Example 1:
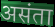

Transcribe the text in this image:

असंता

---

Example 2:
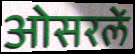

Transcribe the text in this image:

ओसरलें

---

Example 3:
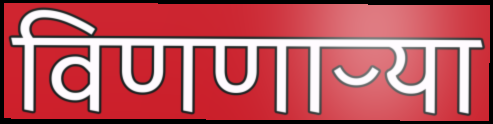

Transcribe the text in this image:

विणणाऱ्या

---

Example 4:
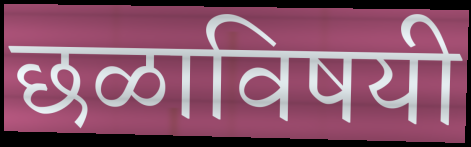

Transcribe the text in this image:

छळाविषयी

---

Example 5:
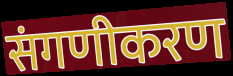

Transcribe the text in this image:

संगणीकरण